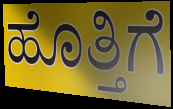
ಹೊತ್ತಿಗೆ